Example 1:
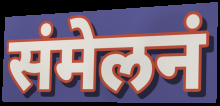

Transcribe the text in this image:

संमेलनं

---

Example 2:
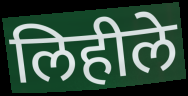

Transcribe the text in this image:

लिहीले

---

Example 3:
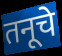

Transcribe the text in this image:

तनूचे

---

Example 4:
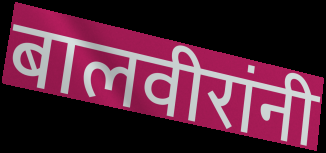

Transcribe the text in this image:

बालवीरांनी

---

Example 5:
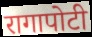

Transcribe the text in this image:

रागापोटी